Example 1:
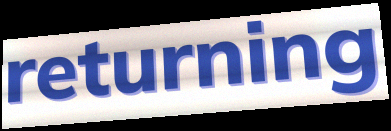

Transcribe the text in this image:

returning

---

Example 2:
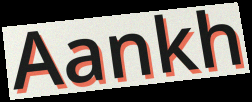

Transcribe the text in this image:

Aankh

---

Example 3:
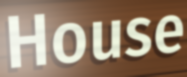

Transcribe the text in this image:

House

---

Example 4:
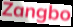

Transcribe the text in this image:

Zangbo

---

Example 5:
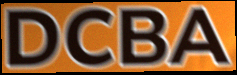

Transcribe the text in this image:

DCBA